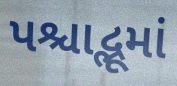
પશ્ચાદ્ભૂમાં